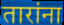
तारांना